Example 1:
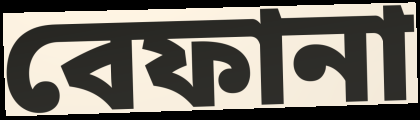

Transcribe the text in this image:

বেফানা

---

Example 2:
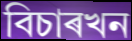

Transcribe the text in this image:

বিচাৰখন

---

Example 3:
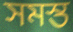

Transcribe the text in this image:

সমস্ত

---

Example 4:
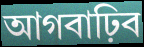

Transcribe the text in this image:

আগবাঢ়িব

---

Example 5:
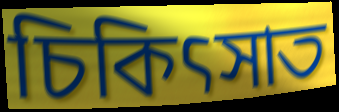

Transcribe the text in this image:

চিকিৎসাত